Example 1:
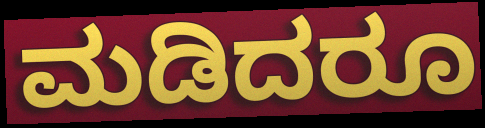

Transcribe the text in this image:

ಮಡಿದರೂ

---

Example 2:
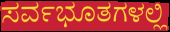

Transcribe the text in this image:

ಸರ್ವಭೂತಗಳಲ್ಲಿ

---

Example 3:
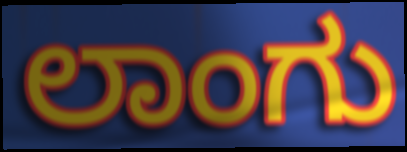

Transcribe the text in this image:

ಲಾಂಗು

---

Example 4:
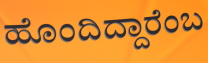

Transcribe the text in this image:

ಹೊಂದಿದ್ದಾರೆಂಬ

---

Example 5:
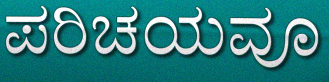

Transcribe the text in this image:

ಪರಿಚಯವೂ